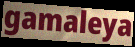
gamaleya